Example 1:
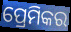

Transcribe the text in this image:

ପ୍ରେମିକର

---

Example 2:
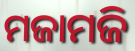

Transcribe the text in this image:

ମଜାମଜି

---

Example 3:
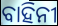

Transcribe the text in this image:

ବାହିନୀ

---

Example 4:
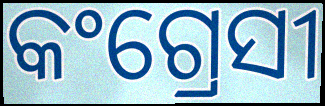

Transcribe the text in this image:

କଂଗ୍ରେସୀ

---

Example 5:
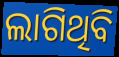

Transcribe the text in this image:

ଲାଗିଥିବି